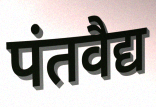
पंतवैद्य